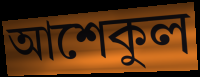
আশেকুল